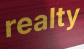
realty